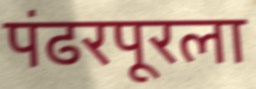
पंढरपूरला